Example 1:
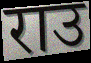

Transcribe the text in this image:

राउ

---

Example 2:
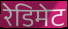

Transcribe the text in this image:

रेडिमेट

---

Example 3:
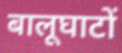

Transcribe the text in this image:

बालूघाटों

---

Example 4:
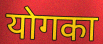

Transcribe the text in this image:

योगका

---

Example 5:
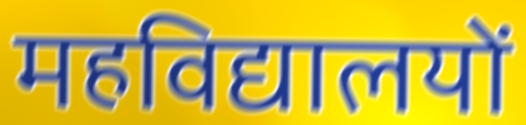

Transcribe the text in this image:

महविद्यालयों